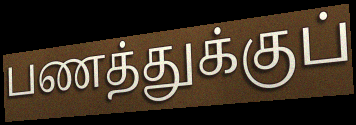
பணத்துக்குப்